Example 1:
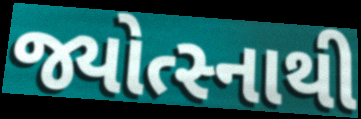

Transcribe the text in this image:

જ્યોત્સ્નાથી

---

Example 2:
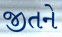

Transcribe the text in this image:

જીતને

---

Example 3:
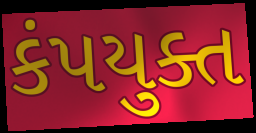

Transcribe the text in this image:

કંપયુક્ત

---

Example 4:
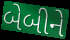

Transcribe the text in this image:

બેબીને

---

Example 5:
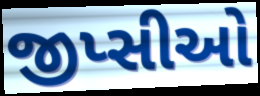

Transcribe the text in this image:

જીપ્સીઓ